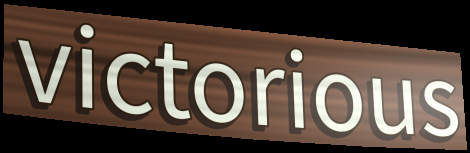
victorious